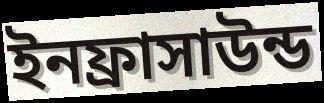
ইনফ্রাসাউন্ড